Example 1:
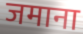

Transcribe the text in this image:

जमाना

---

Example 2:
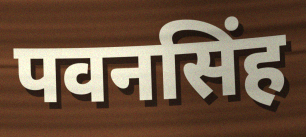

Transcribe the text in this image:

पवनसिंह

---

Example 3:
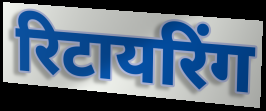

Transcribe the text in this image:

रिटायरिंग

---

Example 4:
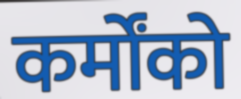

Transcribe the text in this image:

कर्मोंको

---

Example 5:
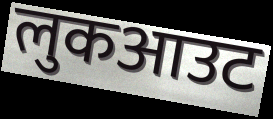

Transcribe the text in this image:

लुकआउट